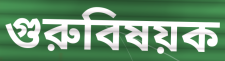
গুরুবিষয়ক